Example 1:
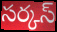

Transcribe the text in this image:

సర్కస్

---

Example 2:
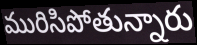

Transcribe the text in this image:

మురిసిపోతున్నారు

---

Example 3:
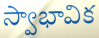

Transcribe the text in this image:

స్వాభావిక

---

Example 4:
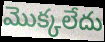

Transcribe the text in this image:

మొక్కలేదు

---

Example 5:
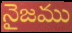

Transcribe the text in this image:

నైజము